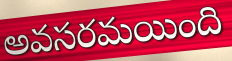
అవసరమయింది